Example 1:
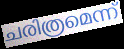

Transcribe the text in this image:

ചരിത്രമെന്ന്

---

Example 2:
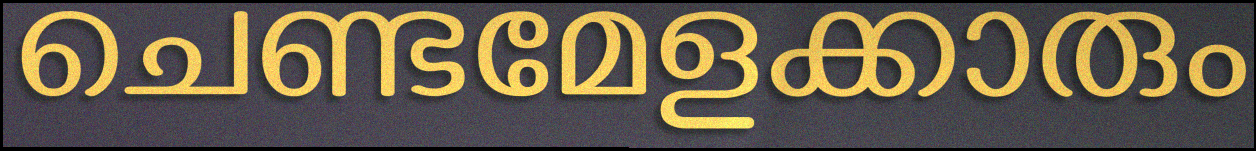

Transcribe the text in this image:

ചെണ്ടമേളക്കാരും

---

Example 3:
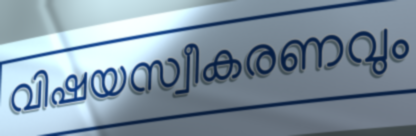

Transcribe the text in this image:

വിഷയസ്വീകരണവും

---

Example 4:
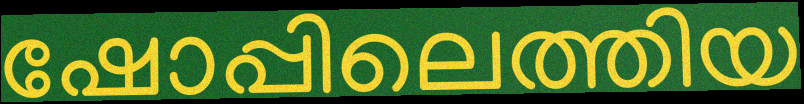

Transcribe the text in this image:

ഷോപ്പിലെത്തിയ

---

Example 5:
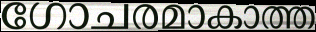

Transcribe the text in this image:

ഗോചരമാകാത്ത